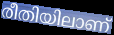
രീതിയിലാണ്